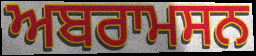
ਅਬਰਾਮਸਨ